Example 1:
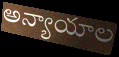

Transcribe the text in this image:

అన్యాయాల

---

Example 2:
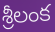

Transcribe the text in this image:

శ్రీలంక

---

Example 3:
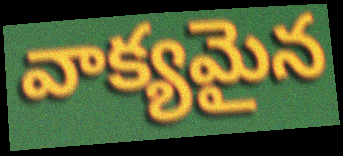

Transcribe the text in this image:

వాక్యమైన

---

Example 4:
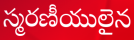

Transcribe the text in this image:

స్మరణీయులైన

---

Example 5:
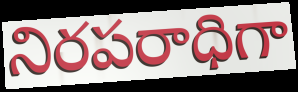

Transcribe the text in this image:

నిరపరాధిగా